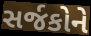
સર્જકોને